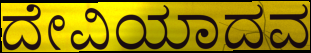
ದೇವಿಯಾದವ